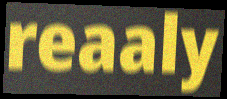
reaaly